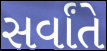
સર્વાંતે